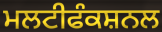
ਮਲਟੀਫੰਕਸ਼ਨਲ